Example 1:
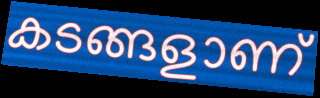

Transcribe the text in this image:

കടങ്ങളാണ്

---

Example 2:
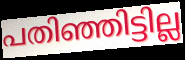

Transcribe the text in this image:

പതിഞ്ഞിട്ടില്ല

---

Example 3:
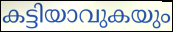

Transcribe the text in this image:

കട്ടിയാവുകയും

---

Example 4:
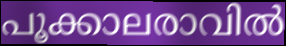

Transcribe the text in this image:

പൂക്കാലരാവിൽ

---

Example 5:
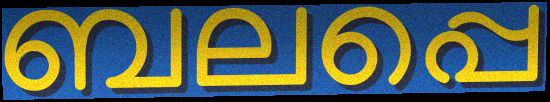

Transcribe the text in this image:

ബലപ്പെ